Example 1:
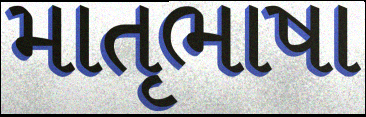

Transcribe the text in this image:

માતૃભાષા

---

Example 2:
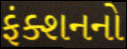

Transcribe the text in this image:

ફંક્શનનો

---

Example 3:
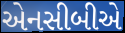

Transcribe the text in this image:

એનસીબીએ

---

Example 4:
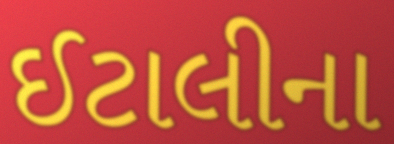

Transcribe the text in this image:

ઈટાલીના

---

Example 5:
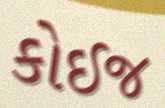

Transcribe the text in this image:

કોઈજ